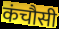
कंचौसी